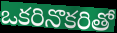
ఒకరినొకరితో